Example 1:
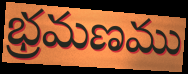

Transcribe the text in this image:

భ్రమణము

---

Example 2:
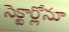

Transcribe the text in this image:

సెక్టార్లోనూ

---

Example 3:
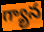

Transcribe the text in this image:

గ్యాన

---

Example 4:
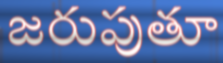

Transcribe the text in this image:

జరుపుతూ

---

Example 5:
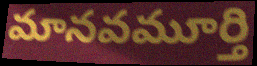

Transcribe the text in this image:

మానవమూర్తి